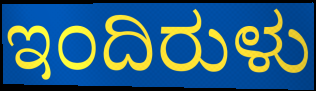
ಇಂದಿರುಳು